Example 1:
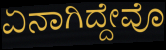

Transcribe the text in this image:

ಏನಾಗಿದ್ದೇವೊ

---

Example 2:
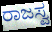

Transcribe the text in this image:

ರಾಜಸ್ವ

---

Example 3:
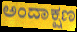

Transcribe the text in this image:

ಅಂದಾಕ್ಷಣ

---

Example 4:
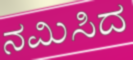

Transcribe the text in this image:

ನಮಿಸಿದ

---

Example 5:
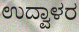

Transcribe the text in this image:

ಉದ್ವಾಳರ